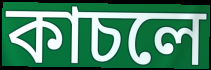
কাচলে